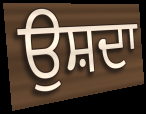
ਉਸ਼ਦਾ